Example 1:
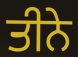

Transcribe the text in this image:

ਤੀਨੇ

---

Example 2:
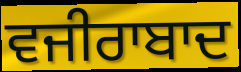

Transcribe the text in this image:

ਵਜੀਰਾਬਾਦ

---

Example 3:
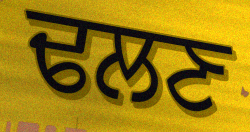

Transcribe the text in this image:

ਢਲਣ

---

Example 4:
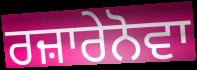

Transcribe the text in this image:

ਰਜ਼ਾਰੇਨੋਵਾ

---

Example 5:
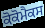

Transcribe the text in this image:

ਕੋਕੋਮੈਕਸ